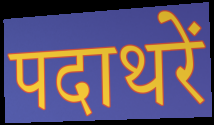
पदाथरें